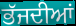
ਭੱਜਦੀਆਂ